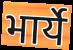
भार्ये